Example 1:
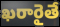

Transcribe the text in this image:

ఖరారైతే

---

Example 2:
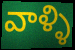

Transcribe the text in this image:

వాళ్ళి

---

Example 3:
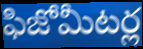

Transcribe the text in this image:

ఫిజోమీటర్ల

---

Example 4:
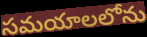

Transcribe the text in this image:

సమయాలలోను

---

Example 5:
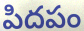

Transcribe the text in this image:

పిదపం